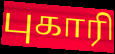
புகாரி